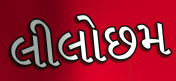
લીલોછમ